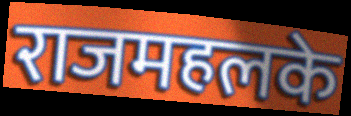
राजमहलके